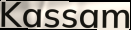
Kassam